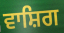
ਵਾਸ਼ਿਗ